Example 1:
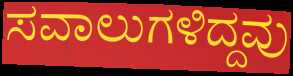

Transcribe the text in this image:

ಸವಾಲುಗಳಿದ್ದವು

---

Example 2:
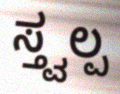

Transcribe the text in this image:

ಸ್ತ್ವಲ್ಪ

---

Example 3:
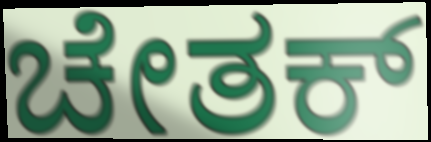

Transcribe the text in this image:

ಚೇತಕ್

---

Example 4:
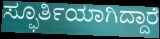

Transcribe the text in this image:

ಸ್ಫೂರ್ತಿಯಾಗಿದ್ದಾರೆ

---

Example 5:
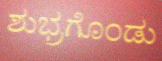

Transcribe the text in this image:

ಶುಭ್ರಗೊಂಡು